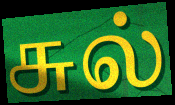
சுல்